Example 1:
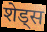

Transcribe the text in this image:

शेड्स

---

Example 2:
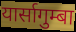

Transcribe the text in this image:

यार्सागुम्बा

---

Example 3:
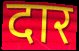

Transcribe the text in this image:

दार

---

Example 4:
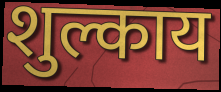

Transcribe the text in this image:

शुल्काय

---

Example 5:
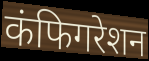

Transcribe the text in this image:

कंफिगरेशन